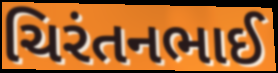
ચિરંતનભાઈ